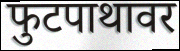
फुटपाथावर